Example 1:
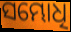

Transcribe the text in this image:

ସମ୍ଭୋଧି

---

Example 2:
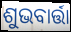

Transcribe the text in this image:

ଶୁଭବାର୍ତ୍ତା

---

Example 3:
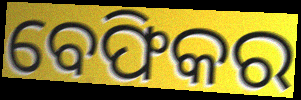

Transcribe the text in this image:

ବେଫିକର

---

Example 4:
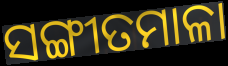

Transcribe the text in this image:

ସଙ୍ଗୀତମାଳା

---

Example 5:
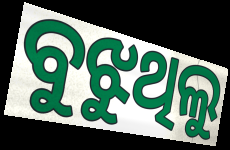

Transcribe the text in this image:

ବୁଝୁଥିଲୁ